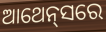
ଆଥେନ୍‍ସରେ